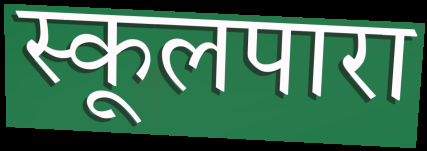
स्कूलपारा